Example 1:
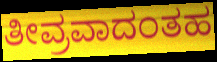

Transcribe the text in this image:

ತೀವ್ರವಾದಂತಹ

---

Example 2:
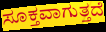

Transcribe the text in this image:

ಸೂಕ್ತವಾಗುತ್ತದೆ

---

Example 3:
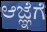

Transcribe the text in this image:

ಆಜ್ಞೆಗೆ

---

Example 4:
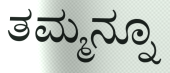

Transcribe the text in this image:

ತಮ್ಮನ್ನೂ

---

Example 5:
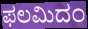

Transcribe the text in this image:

ಫಲಮಿದಂ